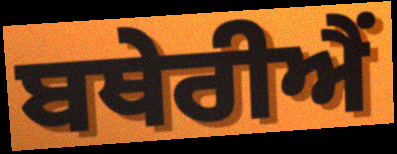
ਬਥੇਰੀਐਂ